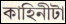
কাহিনীটা